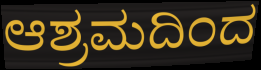
ಆಶ್ರಮದಿಂದ